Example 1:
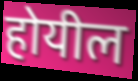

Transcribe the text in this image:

होयील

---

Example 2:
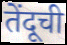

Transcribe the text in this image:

तेंदूची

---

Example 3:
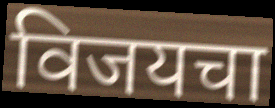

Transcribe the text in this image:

विजयचा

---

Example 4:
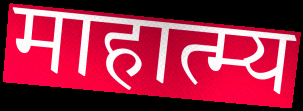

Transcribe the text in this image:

माहात्म्य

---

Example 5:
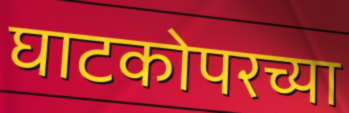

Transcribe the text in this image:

घाटकोपरच्या